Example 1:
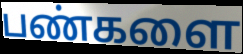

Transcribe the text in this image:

பண்களை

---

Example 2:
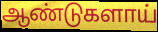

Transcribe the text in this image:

ஆண்டுகளாய்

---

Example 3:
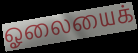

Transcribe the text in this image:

ஓலையைக்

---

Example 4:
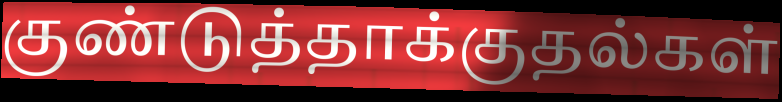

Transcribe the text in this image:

குண்டுத்தாக்குதல்கள்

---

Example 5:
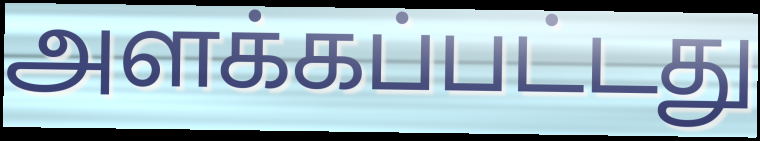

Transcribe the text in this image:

அளக்கப்பட்டது